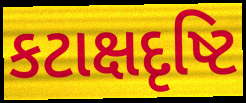
કટાક્ષદૃષ્ટિ